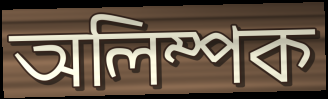
অলিম্পক